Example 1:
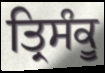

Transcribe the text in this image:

ਤ੍ਰਿਸੰਕੂ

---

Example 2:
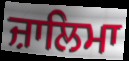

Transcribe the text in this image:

ਜ਼ਾਲਿਮਾ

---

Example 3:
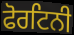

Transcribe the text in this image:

ਫੋਰਟਿਨੀ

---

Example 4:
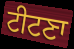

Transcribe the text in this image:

ਟੀਟਣਾ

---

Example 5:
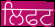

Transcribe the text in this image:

ਲਿਫਟ